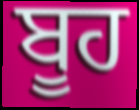
ਬੂਹ